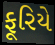
ફૂરિયે